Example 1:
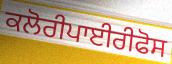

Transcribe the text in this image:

ਕਲੋਰੀਪਾਈਰੀਫੋਸ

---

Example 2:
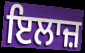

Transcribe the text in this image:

ਇਲਾਜ਼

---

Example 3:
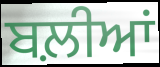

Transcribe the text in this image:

ਬਲ਼ੀਆਂ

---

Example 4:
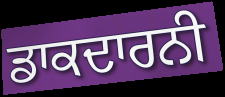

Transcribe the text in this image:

ਡਾਕਦਾਰਨੀ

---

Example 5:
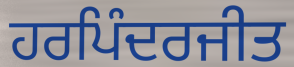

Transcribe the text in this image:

ਹਰਪਿੰਦਰਜੀਤ